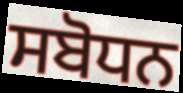
ਸਬੋਧਨ